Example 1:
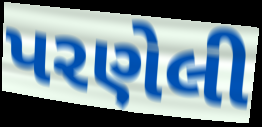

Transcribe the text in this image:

પરણેલી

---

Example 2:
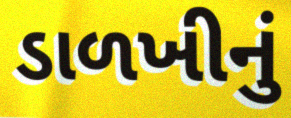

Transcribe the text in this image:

ડાળખીનું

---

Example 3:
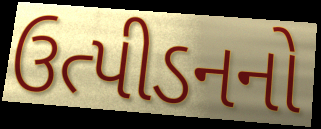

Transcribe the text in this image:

ઉત્પીડનનો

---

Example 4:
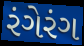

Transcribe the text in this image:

રંગેરંગ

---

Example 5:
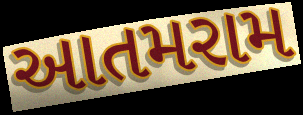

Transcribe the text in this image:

આતમરામ